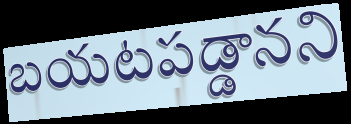
బయటపడ్డానని